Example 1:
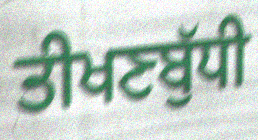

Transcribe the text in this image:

ਤੀਖਣਬੁੱਧੀ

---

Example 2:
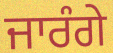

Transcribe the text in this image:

ਜਾਰੰਗੇ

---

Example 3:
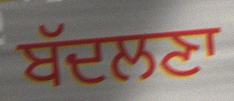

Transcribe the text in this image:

ਬੱਦਲਣਾ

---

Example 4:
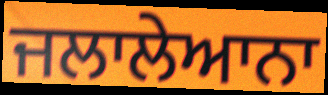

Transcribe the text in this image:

ਜਲਾਲੇਆਨਾ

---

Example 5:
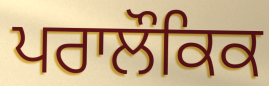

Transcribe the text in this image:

ਪਰਾਲੌਕਿਕ